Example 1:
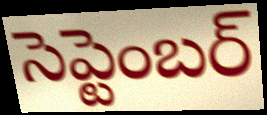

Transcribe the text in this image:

సెప్టెంబర్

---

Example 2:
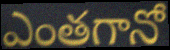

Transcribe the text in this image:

ఎంతగానో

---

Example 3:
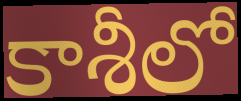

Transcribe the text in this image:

కాశీలో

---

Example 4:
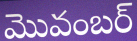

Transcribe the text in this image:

మొవంబర్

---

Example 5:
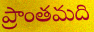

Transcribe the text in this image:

ప్రాంతమది